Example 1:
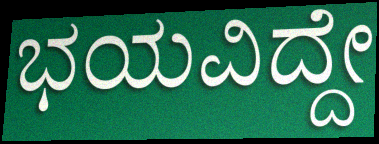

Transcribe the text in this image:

ಭಯವಿದ್ದೇ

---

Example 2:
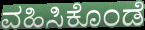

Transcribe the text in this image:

ವಹಿಸಿಕೊಂಡೆ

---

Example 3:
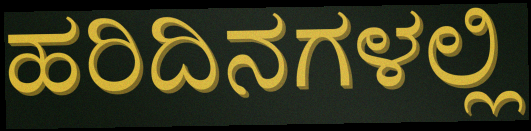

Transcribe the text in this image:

ಹರಿದಿನಗಳಲ್ಲಿ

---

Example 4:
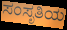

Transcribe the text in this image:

ಸಂಸೃತಿಯ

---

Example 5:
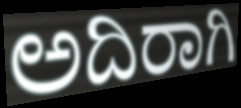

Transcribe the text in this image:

ಅದಿರಾಗಿ